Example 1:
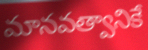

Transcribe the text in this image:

మానవత్వానికే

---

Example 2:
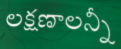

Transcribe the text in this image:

లక్షణాలన్నీ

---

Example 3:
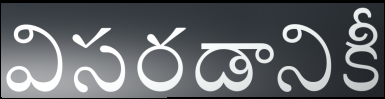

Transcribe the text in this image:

విసరడానికీ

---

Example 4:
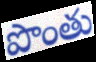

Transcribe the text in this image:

పొంతు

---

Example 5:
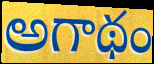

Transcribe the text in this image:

అగాథం